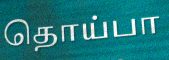
தொய்பா